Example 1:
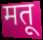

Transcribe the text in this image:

मतू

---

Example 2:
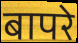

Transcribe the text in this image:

बापरे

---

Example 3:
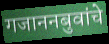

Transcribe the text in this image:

गजाननबुवांचे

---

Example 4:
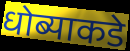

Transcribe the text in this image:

धोब्याकडे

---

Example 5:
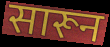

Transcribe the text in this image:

सारून